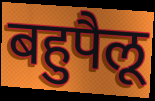
बहुपैलू